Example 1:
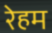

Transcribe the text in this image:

रेहम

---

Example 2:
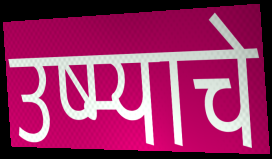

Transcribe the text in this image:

उष्म्याचे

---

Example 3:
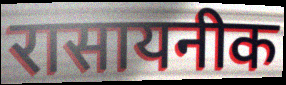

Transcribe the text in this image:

रासायनीक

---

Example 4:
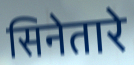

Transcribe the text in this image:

सिनेतारे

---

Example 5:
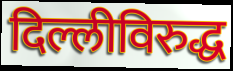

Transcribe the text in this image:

दिल्लीविरुद्ध